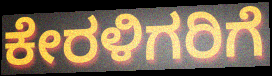
ಕೇರಳಿಗರಿಗೆ